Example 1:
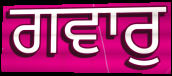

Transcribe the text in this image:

ਗਵਾਰੁ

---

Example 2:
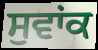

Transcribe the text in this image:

ਸੁਵਾਂਕ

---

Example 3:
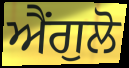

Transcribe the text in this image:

ਐਂਗੁਲੋ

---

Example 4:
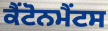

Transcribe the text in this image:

ਕੈਂਟੋਨਮੈਂਟਸ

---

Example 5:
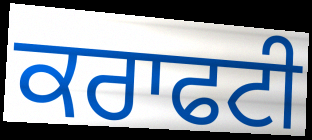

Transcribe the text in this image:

ਕਰਾਫਟੀ